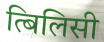
त्बिलिसी